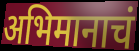
अभिमानाचं